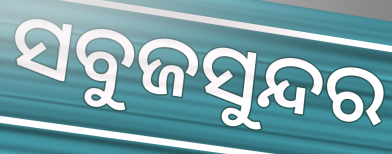
ସବୁଜସୁନ୍ଦର